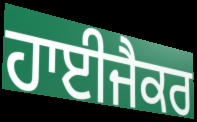
ਹਾਈਜੈਕਰ